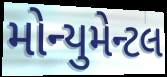
મોન્યુમેન્ટલ